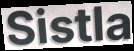
Sistla